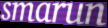
smarun